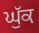
ਘੁੱਕ